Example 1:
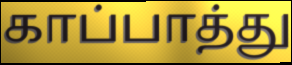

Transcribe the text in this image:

காப்பாத்து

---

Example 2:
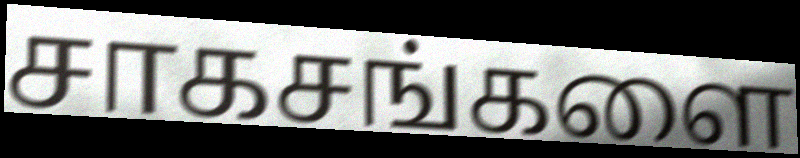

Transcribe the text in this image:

சாகசங்களை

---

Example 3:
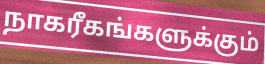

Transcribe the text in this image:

நாகரீகங்களுக்கும்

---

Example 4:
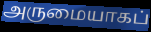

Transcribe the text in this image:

அருமையாகப்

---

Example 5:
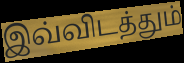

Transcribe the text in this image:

இவ்விடத்தும்